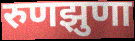
रुणझुणा